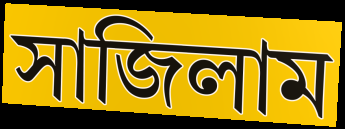
সাজিলাম